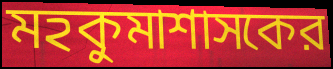
মহকুমাশাসকের